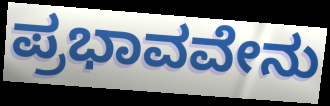
ಪ್ರಭಾವವೇನು